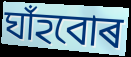
ঘাঁহবোৰ